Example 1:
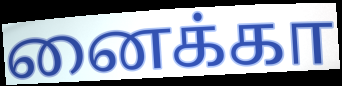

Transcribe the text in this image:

னைக்கா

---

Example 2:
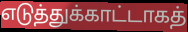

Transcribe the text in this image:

எடுத்துக்காட்டாகத்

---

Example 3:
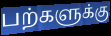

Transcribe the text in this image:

பற்களுக்கு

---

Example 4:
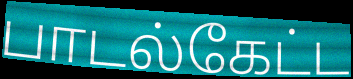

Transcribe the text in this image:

பாடல்கேட்ட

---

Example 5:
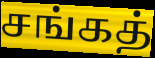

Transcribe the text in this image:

சங்கத்